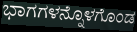
ಭಾಗಗಳನ್ನೊಳಗೊಂಡ